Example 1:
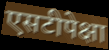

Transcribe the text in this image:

एसटीपेक्षा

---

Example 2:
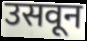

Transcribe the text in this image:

उसवून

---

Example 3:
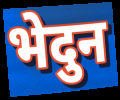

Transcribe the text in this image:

भेदुन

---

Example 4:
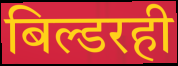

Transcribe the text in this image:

बिल्डरही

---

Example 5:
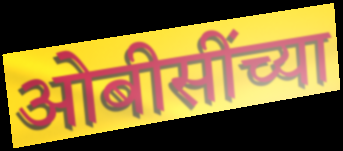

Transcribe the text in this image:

ओबीसींच्या